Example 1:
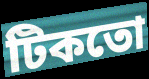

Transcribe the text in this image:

টিকতো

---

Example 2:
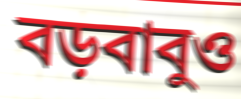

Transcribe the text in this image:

বড়বাবুও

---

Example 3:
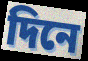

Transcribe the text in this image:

দিনে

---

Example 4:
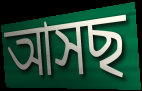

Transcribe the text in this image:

আসছ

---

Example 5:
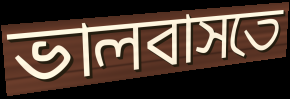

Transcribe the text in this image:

ভালবাসতে